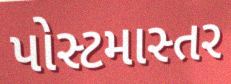
પોસ્ટમાસ્તર